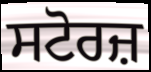
ਸਟੋਰਜ਼